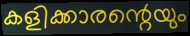
കളിക്കാരന്റെയും